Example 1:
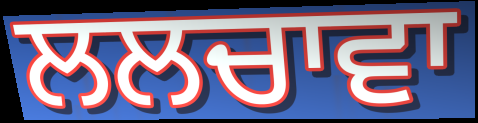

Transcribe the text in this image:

ਲਲਚਾਵਾ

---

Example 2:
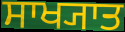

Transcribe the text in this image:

ਸਾਖ੍ਯਾਤ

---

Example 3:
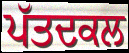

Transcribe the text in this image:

ਪੱਤਦਕਲ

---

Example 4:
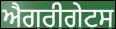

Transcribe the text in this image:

ਐਗਰੀਗੇਟਸ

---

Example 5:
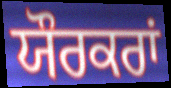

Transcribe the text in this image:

ਯੌਰਕਰਾਂ